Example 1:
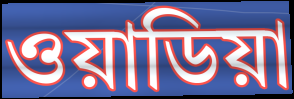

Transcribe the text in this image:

ওয়াডিয়া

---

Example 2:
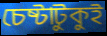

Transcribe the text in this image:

চেষ্টাটুকুই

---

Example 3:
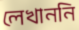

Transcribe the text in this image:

লেখাননি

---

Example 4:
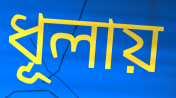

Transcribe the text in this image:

ধূলায়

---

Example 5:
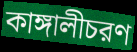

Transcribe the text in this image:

কাঙ্গালীচরণ